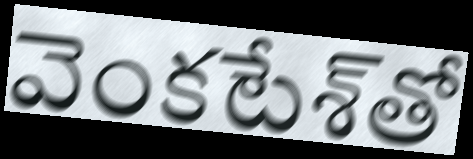
వెంకటేశ్‌తో